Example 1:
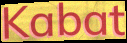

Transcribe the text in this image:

Kabat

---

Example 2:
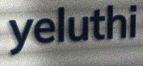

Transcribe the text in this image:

yeluthi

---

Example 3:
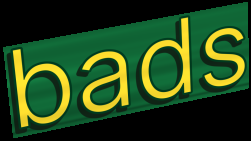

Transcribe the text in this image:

bads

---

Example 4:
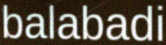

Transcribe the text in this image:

balabadi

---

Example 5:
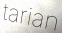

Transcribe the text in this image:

tarian